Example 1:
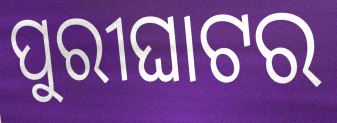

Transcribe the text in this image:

ପୁରୀଘାଟର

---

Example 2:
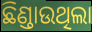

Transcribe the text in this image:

ଛିଣ୍ଡାଉଥିଲା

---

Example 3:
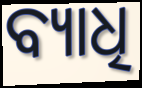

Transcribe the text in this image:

ବ୍ୟାଧି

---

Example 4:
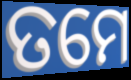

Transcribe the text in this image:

ତମେ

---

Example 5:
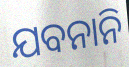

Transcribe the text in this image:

ଯବନାନି